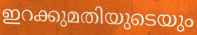
ഇറക്കുമതിയുടെയും